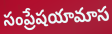
సంప్రేషయామాస